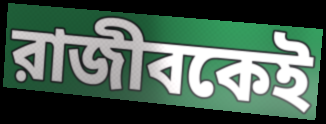
রাজীবকেই